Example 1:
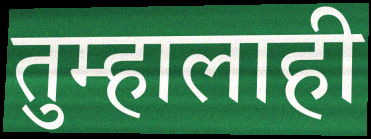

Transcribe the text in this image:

तुम्हालाही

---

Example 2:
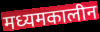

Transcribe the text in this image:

मध्यमकालीन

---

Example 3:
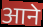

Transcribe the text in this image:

आने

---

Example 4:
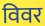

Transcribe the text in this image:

विवर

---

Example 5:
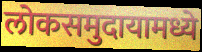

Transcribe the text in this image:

लोकसमुदायामध्ये